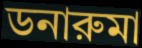
ডনারুমা